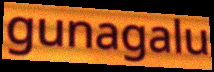
gunagalu